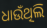
ଧାଉଁଥିଲି